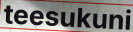
teesukuni